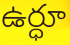
ఉర్ధూ